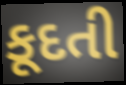
કૂદતી